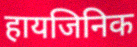
हायजिनिक